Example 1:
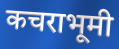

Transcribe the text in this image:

कचराभूमी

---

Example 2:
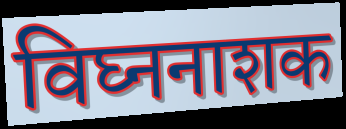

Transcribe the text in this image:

विघ्ननाशक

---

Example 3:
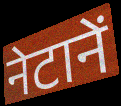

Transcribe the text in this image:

नेटानें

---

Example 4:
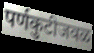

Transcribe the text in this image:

पर्णकुटीजवळ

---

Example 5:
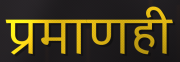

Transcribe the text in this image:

प्रमाणही